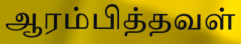
ஆரம்பித்தவள்